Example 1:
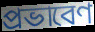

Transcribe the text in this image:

প্রভাবেণ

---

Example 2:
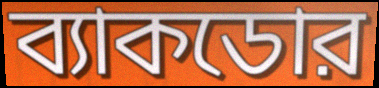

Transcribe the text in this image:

ব্যাকডোর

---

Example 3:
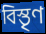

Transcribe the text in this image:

বিস্তৃণ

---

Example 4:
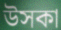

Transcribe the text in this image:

উসকা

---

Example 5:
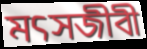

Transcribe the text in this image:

মৎসজীবী